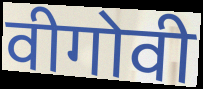
वीगोवी